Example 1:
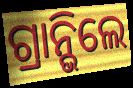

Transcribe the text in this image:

ଗ୍ରାନ୍ଭିଲେ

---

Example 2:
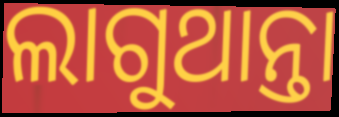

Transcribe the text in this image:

ଲାଗୁଥାନ୍ତା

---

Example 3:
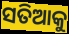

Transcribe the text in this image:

ସତିଆକୁ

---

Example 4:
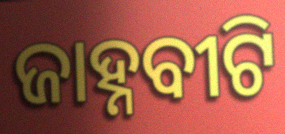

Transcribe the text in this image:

ଜାହ୍ନବୀଟି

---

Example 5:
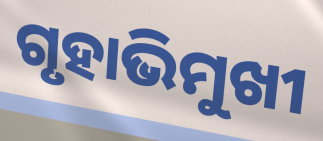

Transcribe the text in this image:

ଗୃହାଭିମୁଖୀ